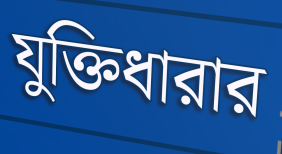
যুক্তিধারার